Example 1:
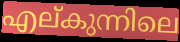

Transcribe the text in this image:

എല്കുന്നിലെ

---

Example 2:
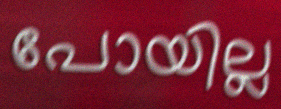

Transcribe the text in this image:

പോയില്ല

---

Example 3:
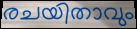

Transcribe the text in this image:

രചയിതാവും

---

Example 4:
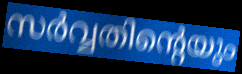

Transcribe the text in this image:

സർവ്വതിന്റെയും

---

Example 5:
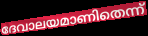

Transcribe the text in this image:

ദേവാലയമാണിതെന്ന്